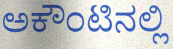
ಅಕೌಂಟಿನಲ್ಲಿ